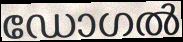
ഡോഗൽ